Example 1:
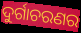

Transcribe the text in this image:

ଦୁର୍ଗାଚରଣର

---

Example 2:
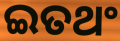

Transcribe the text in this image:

ଇତଥଂ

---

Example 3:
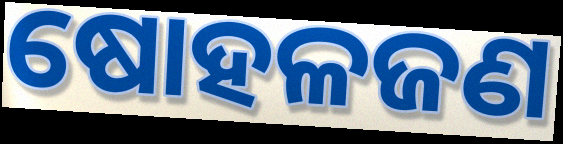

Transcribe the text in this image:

ଷୋହଳଜଣ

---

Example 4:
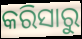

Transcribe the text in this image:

କରିସାରୁ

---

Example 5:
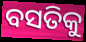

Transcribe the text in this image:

ବସତିକୁ